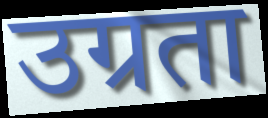
उग्रता